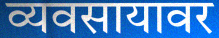
व्यवसायावर